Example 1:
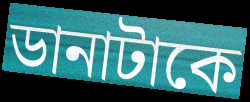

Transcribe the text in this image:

ডানাটাকে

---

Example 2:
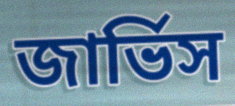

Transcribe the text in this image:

জার্ভিস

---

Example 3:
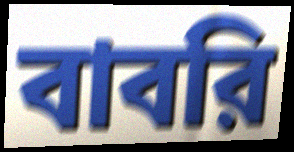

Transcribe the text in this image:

বাবরি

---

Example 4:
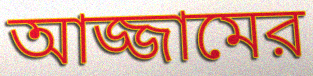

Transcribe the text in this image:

আজ্জামের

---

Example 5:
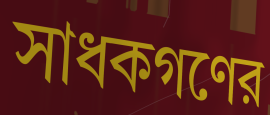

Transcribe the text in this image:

সাধকগণের